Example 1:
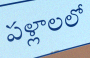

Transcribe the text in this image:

పళ్లాలలో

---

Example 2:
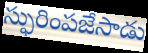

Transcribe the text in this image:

స్ఫురింపజేసాడు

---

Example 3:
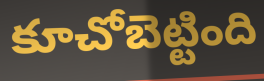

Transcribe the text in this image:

కూచోబెట్టింది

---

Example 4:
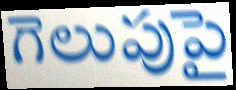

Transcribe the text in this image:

గెలుపుపై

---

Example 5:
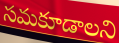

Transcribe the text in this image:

సమకూడాలని